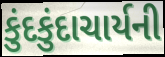
કુંદકુંદાચાર્યની